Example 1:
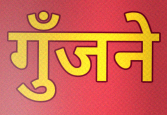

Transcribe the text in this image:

गुँजने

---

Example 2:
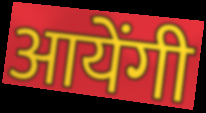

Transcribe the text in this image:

आयेंगी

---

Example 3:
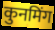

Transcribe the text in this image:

कुनमिंग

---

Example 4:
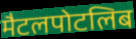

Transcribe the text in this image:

मैटलपोटलिब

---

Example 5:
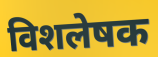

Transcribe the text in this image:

विशलेषक